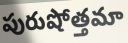
పురుషోత్తమా